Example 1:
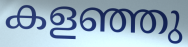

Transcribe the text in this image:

കളഞ്ഞു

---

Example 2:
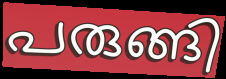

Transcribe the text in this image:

പരുങ്ങി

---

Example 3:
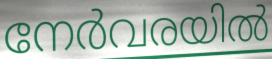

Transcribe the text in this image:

നേർവരയിൽ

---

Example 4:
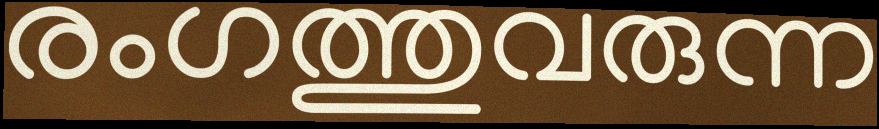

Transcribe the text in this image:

രംഗത്തുവരുന്ന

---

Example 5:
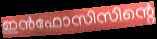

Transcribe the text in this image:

ഇൻഫോസിസിന്റെ